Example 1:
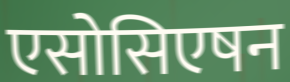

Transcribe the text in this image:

एसोसिएषन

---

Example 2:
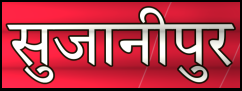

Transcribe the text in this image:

सुजानीपुर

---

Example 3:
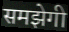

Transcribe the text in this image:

समझेगी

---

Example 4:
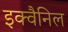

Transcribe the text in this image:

इक्वैनिल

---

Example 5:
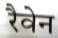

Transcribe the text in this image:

रैवेन